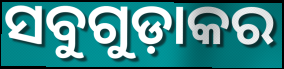
ସବୁଗୁଡ଼ାକର